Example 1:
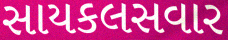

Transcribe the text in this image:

સાયકલસવાર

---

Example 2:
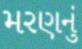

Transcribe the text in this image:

મરણનું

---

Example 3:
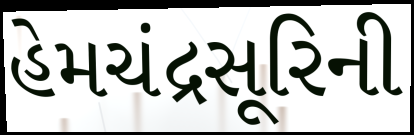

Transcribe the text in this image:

હેમચંદ્રસૂરિની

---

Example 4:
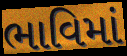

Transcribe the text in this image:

ભાવિમાં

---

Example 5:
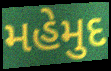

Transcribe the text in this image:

મહેમુદ